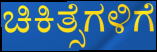
ಚಿಕಿತ್ಸೆಗಳಿಗೆ